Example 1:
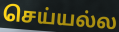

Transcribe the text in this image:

செய்யல்ல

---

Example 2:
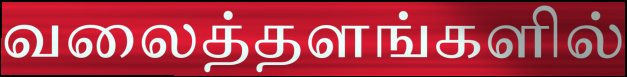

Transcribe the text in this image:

வலைத்தளங்களில்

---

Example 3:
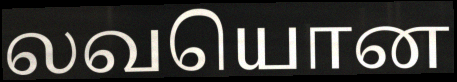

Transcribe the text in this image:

லவயொன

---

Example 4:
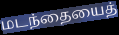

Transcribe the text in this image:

மடந்தையைத்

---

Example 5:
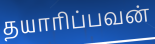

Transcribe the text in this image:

தயாரிப்பவன்